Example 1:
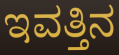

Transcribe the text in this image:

ಇವತ್ತಿನ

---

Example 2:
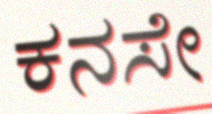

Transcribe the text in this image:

ಕನಸೇ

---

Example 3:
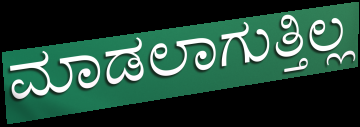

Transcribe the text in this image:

ಮಾಡಲಾಗುತ್ತಿಲ್ಲ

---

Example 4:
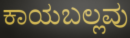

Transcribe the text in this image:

ಕಾಯಬಲ್ಲವು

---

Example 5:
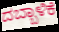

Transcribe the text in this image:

ದಬ್ಬಾಳಿಕೆ